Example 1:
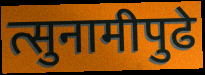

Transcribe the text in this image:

त्सुनामीपुढे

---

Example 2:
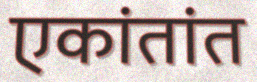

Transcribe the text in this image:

एकांतांत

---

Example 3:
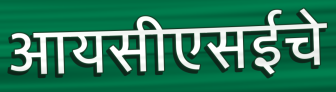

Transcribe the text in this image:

आयसीएसईचे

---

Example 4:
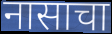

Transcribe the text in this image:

नासाचा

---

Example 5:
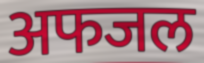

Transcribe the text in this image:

अफजल